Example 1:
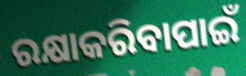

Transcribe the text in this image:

ରକ୍ଷାକରିବାପାଇଁ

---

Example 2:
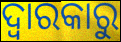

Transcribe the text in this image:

ଦ୍ଵାରକାରୁ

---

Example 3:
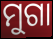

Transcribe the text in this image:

ମୁଗା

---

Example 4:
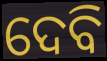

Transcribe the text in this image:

ଦେବି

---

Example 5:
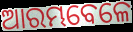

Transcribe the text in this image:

ଆରମ୍ଭବେଳେ